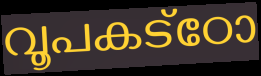
വൂപകട്ഠോ